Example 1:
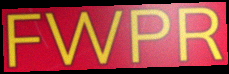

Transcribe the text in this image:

FWPR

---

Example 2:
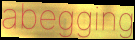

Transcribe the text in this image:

abegging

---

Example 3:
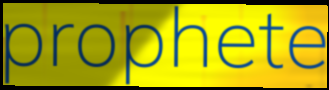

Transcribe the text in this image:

prophete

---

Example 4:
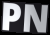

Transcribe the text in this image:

PN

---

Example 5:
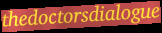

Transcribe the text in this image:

thedoctorsdialogue